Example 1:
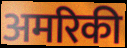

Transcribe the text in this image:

अमरिकी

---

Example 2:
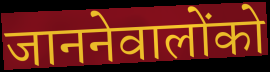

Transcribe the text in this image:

जाननेवालोंको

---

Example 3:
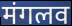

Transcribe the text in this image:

मंगलव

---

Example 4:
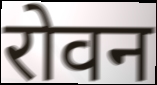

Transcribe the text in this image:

रोवन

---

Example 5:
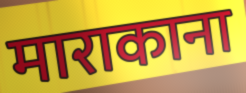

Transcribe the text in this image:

माराकाना